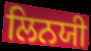
ਲਿਨਯੀ